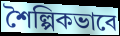
শৈল্পিকভাবে